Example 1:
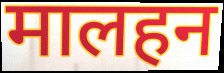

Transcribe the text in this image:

मालहन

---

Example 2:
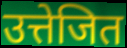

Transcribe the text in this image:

उत्तेजित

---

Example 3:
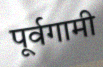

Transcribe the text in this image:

पूर्वगामी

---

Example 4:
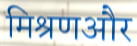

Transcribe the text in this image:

मिश्रणऔर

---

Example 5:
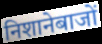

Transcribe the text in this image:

निशानेबाजों